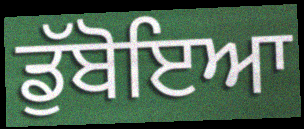
ਡੁੱਬੋਇਆ